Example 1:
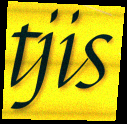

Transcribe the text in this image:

tjis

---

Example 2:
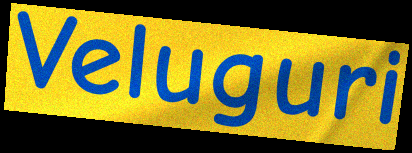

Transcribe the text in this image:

Veluguri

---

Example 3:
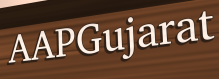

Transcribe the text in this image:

AAPGujarat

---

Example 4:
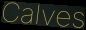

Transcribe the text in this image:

Calves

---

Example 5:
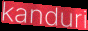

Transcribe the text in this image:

kanduri